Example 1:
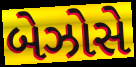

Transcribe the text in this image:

બેઝોસે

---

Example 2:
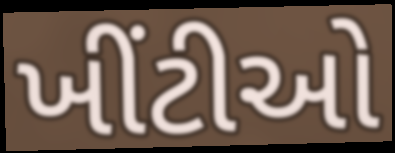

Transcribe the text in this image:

ખીંટીઓ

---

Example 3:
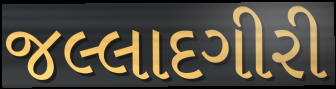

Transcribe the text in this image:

જલ્લાદગીરી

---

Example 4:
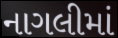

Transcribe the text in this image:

નાગલીમાં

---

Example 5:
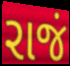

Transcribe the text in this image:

રાજં